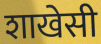
शाखेसी